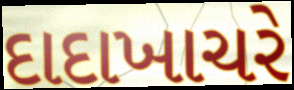
દાદાખાચરે